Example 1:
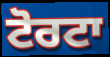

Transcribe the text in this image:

ਟੋਰਟਾ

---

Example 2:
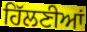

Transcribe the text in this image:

ਹਿੱਲਣੀਆਂ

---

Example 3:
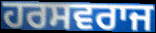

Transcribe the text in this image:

ਹਰਸਵਰਾਜ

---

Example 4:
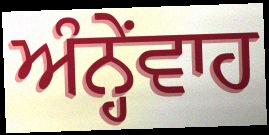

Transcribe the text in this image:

ਅੰਨ੍ਹੇਂਵਾਹ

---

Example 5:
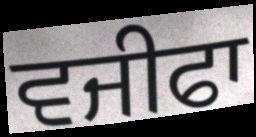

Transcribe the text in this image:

ਵਜੀਫਾ